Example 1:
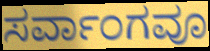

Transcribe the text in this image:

ಸರ್ವಾಂಗವೂ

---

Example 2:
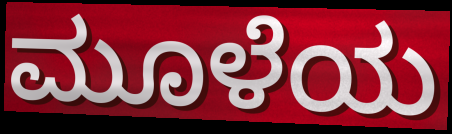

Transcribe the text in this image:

ಮೂಳೆಯ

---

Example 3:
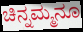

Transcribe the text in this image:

ಚಿನ್ನಮ್ಮನೂ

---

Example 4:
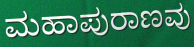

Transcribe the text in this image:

ಮಹಾಪುರಾಣವು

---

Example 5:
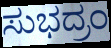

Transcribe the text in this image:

ಸುಭದ್ರಂ